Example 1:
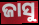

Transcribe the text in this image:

ଜାସୁ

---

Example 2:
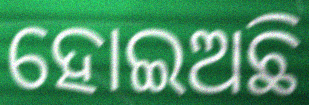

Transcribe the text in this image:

ହୋଇଅଛି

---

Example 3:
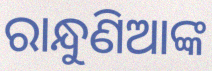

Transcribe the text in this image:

ରାନ୍ଧୁଣିଆଙ୍କ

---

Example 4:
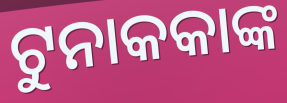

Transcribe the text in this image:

ଟୁନାକକାଙ୍କ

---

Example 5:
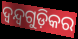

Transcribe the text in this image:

ଦ୍ୱନ୍ଦ୍ୱଗୁଡ଼ିକର